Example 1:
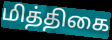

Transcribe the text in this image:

மித்திகை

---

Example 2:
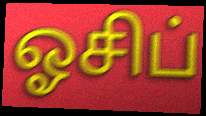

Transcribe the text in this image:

ஓசிப்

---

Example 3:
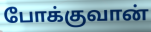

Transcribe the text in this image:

போக்குவான்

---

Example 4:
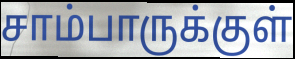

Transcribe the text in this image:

சாம்பாருக்குள்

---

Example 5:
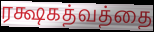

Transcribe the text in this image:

ரக்ஷகத்வத்தை